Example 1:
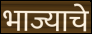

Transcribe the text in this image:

भाज्याचे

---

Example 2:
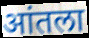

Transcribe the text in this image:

आंतला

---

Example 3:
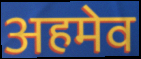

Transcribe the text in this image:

अहमेव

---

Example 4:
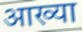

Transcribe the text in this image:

आख्या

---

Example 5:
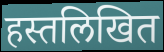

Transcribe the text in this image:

हस्तलिखित